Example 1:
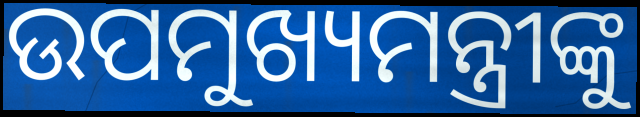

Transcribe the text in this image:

ଉପମୁଖ୍ୟମନ୍ତ୍ରୀଙ୍କୁ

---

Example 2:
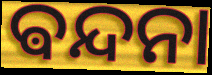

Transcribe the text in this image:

ଵନ୍ଦନା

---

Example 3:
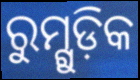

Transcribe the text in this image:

ରୁମ୍ଗୁଡ଼ିକ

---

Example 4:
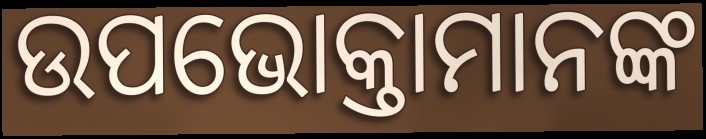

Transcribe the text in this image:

ଉପଭୋକ୍ତାମାନଙ୍କ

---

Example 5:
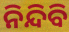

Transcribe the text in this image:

ନିନ୍ଦିବି